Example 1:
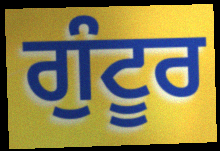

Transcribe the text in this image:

ਗੁੰਟੂਰ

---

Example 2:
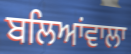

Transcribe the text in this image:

ਬਲਿਆਂਵਾਲਾ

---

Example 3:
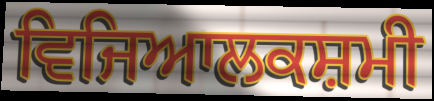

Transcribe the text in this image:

ਵਿਜਿਆਲਕਸ਼ਮੀ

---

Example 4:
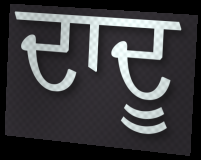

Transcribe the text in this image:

ਦਾਦੂ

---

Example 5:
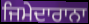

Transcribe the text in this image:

ਜਿਮੇਦਾਰਾਨਾ